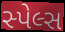
સ્પેલ્સ